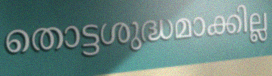
തൊട്ടശുദ്ധമാക്കില്ല